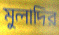
মুলাদির